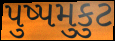
પુષ્પમુકુટ